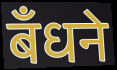
बँधने